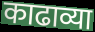
काढाव्या